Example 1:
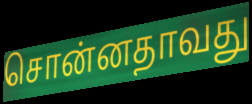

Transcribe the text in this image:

சொன்னதாவது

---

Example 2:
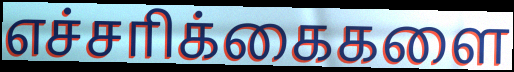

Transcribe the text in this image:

எச்சரிக்கைகளை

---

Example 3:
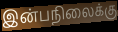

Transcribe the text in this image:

இன்பநிலைக்கு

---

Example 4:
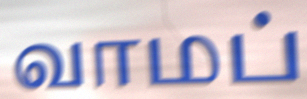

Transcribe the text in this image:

வாமப்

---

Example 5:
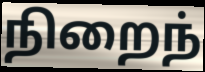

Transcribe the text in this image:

நிறைந்